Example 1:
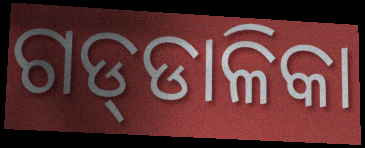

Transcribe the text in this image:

ଗଡ୍‍ଡାଳିକା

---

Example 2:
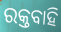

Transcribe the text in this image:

ରକ୍ତବାହି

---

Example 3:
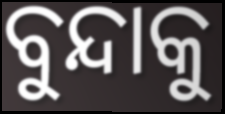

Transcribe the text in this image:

ବୁନ୍ଦାକୁ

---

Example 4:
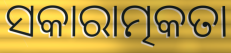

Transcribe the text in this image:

ସକାରାତ୍ମକତା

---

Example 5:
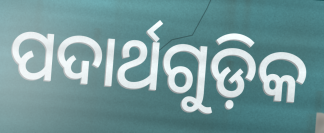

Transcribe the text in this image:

ପଦାର୍ଥଗୁଡ଼ିକ